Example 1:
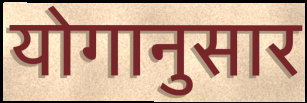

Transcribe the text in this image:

योगानुसार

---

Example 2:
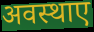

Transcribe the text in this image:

अवस्थाए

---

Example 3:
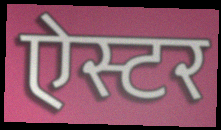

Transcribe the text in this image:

ऐस्टर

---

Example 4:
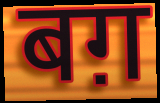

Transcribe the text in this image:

बग़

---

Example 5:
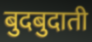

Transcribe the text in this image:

बुदबुदाती